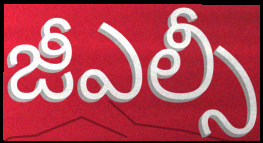
జీఎల్సీ